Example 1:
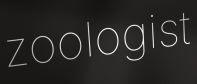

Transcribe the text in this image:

zoologist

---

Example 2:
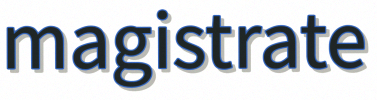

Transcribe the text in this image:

magistrate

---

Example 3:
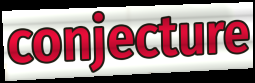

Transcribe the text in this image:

conjecture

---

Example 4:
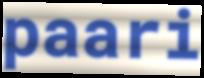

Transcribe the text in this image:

paari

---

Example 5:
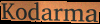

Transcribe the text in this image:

Kodarma